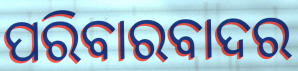
ପରିବାରବାଦର